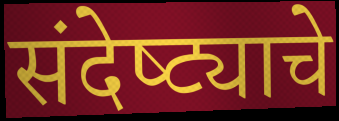
संदेष्ट्याचे